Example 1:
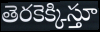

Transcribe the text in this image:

తెరకెక్కిస్తూ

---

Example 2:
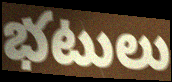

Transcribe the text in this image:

భటులు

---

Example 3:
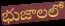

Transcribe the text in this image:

భుజాలలో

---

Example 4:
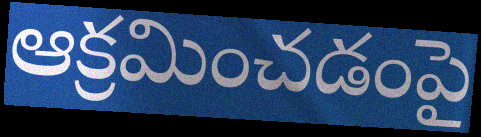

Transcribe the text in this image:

ఆక్రమించడంపై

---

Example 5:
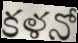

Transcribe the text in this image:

కళనో